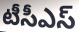
టీసీఎస్